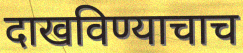
दाखविण्याचाच